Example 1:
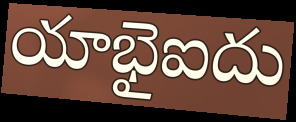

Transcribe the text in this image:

యాభైఐదు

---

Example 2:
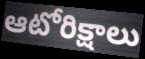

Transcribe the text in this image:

ఆటోరిక్షాలు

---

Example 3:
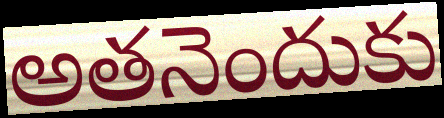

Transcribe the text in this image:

అతనెందుకు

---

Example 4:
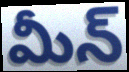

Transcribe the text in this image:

మీన్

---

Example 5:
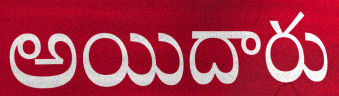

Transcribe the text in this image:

అయిదారు